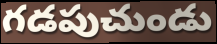
గడపుచుండు